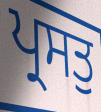
ਪ੍ਰਸਤੁ